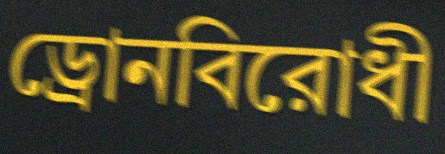
ড্রোনবিরোধী